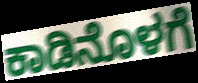
ಕಾಡಿನೊಳಗೆ